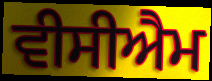
ਵੀਸੀਐਮ